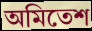
অমিতেশ